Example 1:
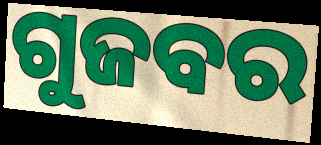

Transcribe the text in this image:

ଗୁଜବର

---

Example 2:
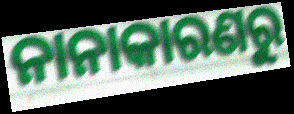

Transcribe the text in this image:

ନାନାକାରଣରୁ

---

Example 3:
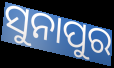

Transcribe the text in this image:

ସୁନାପୁର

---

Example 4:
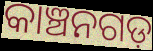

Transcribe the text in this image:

କାଞ୍ଚନଗଡ଼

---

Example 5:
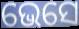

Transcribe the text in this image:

ଭେସେ